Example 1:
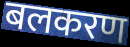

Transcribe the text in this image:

बलकरण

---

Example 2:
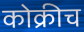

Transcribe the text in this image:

कोक्रीच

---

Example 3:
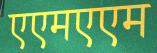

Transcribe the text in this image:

एएमएएम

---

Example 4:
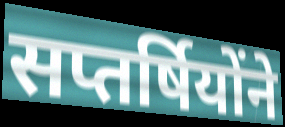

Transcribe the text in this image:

सप्तर्षियोंने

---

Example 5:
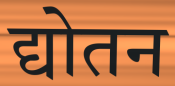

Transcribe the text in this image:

द्योतन